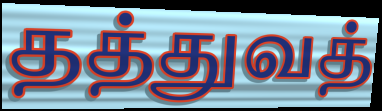
தத்துவத்